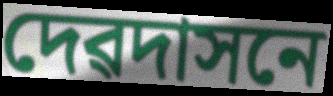
দেৱদাসনে